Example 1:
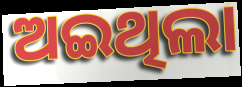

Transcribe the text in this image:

ଅଇଥିଲା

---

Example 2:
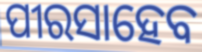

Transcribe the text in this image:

ପୀରସାହେବ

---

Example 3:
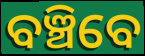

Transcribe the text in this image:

ବଞ୍ଚିବେ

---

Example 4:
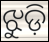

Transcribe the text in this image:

ଝୁଡ଼ି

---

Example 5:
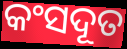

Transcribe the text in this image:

କଂସଦୂତ